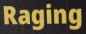
Raging